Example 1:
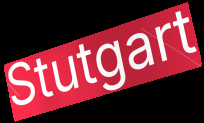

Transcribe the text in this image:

Stutgart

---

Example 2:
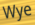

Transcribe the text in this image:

Wye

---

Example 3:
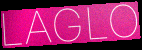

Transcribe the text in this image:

LAGLO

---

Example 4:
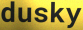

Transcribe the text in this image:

dusky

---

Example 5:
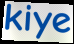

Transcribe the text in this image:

kiye